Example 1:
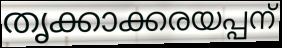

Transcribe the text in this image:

തൃക്കാക്കരയപ്പന്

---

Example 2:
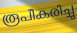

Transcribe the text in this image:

രൂപീകരിച്ചു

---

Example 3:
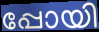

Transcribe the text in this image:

പ്പോയി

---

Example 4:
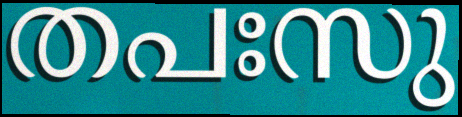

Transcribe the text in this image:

തപഃസു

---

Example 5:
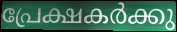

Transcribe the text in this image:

പ്രേക്ഷകർക്കു